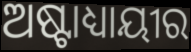
ଅଷ୍ଟାଧ୍ଯାୟୀର